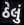
ઠેલું